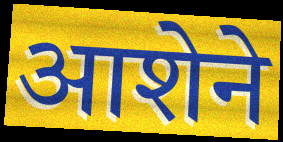
आशेने